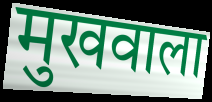
मुखवाला